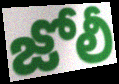
జోలీ